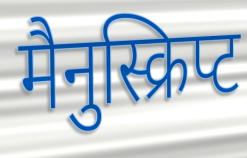
मैनुस्क्रिप्ट